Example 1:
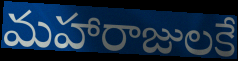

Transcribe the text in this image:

మహారాజులకే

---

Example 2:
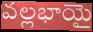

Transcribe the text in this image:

వల్లభాయై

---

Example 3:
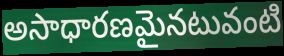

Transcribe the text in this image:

అసాధారణమైనటువంటి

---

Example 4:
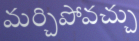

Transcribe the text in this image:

మర్చిపోవచ్చు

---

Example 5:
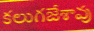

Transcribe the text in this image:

కలుగజేశావు